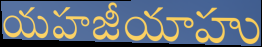
యహజీయాహు